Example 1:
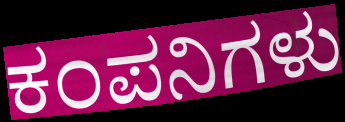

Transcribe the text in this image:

ಕಂಪನಿಗಳು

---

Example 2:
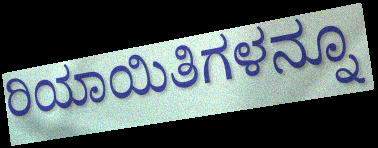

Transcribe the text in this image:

ರಿಯಾಯಿತಿಗಳನ್ನೂ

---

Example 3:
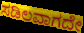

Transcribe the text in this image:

ಸಡಿಲವಾಗದೇ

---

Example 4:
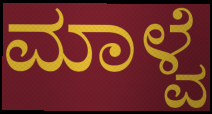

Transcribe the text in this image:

ಮಾಳ್ವೆ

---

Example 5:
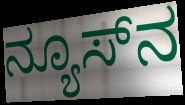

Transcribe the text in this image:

ನ್ಯೂಸ್‌ನ